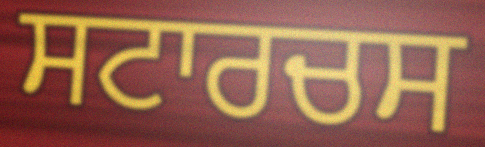
ਸਟਾਰਚਸ